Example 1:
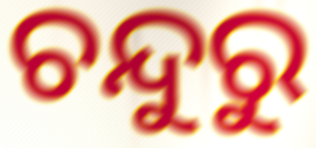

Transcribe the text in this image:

ଚନ୍ଦୁରୁ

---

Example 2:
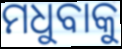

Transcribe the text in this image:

ମଧୁବାକୁ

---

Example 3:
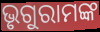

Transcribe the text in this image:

ଭୃଗୁରାମଙ୍କ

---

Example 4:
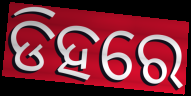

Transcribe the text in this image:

ଡିହରେ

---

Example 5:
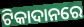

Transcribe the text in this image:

ଟିକାଦାନରେ